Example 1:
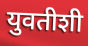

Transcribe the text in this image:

युवतीशी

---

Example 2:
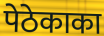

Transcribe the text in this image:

पेठेकाका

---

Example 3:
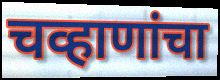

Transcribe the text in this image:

चव्हाणांचा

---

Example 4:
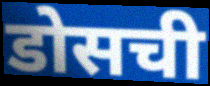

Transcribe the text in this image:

डोसची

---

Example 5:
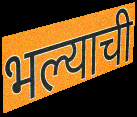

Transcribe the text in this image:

भल्याची